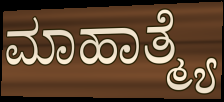
ಮಾಹಾತ್ಮ್ಯೆ